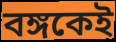
বঙ্গকেই